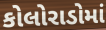
કોલોરાડોમાં